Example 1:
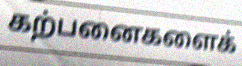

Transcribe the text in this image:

கற்பனைகளைக்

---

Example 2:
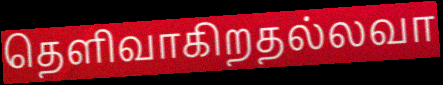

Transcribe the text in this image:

தெளிவாகிறதல்லவா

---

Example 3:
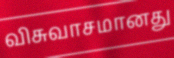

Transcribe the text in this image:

விசுவாசமானது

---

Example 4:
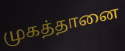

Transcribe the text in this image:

முகத்தானை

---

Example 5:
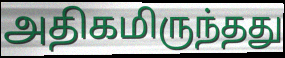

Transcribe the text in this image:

அதிகமிருந்தது